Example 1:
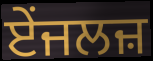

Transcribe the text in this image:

ਏਂਜਲਜ਼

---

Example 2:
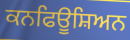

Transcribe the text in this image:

ਕਨਫਿਊਸ਼ਿਅਨ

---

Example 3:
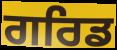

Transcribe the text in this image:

ਗਰਿਡ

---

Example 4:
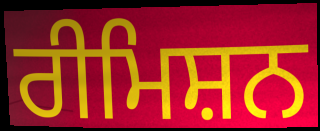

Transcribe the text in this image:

ਰੀਮਿਸ਼ਨ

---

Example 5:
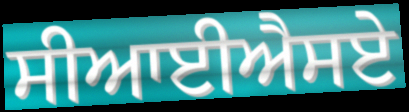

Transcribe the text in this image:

ਸੀਆਈਐਸਏ